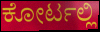
ಕೋರ್ಟಲ್ಲಿ